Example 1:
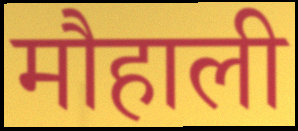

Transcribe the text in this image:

मौहाली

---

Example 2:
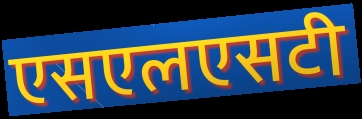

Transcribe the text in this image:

एसएलएसटी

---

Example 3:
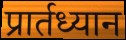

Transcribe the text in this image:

प्रार्तध्यान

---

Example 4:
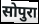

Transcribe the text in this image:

सोपुरा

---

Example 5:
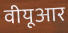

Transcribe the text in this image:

वीयूआर